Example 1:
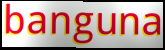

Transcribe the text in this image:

banguna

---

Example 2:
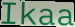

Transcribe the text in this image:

Ikaa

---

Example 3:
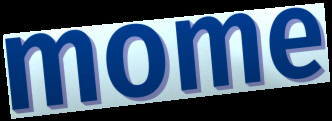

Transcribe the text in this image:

mome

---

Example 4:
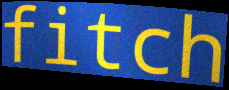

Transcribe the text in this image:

fitch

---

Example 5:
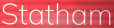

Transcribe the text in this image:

Statham